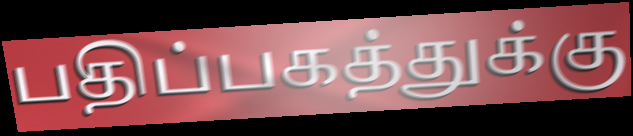
பதிப்பகத்துக்கு